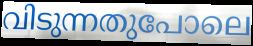
വിടുന്നതുപോലെ